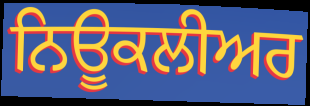
ਨਿਊਕਲੀਅਰ